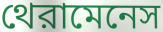
থেরামেনেস